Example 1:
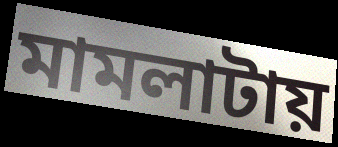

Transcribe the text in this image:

মামলাটায়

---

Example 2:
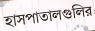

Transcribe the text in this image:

হাসপাতালগুলির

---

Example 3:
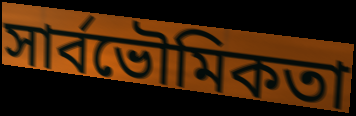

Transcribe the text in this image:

সার্বভৌমিকতা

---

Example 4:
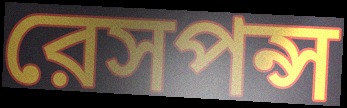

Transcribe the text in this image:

রেসপন্স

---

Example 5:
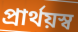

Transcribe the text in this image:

প্রার্থয়স্ব